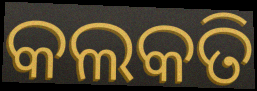
କଲକତି